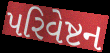
પરિવેષ્ટન